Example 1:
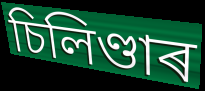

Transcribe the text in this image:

চিলিণ্ডাৰ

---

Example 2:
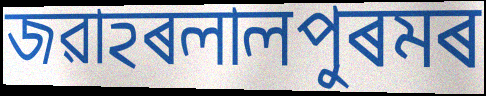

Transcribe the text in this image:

জৱাহৰলালপুৰমৰ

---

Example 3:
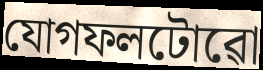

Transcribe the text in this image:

যোগফলটোৱো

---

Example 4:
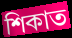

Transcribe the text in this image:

শিকাত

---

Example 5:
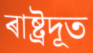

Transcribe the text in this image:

ৰাষ্ট্ৰদূত